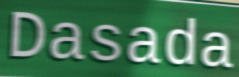
Dasada